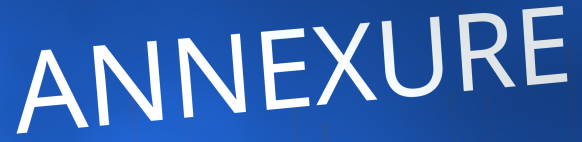
ANNEXURE